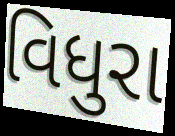
વિધુરા